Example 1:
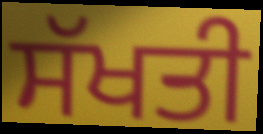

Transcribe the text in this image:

ਸੱਖਤੀ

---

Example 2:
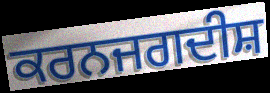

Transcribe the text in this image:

ਕਰਨਜਗਦੀਸ਼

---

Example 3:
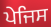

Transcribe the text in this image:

ਪੇਜਿਸ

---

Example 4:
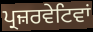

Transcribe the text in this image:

ਪ੍ਰਜ਼ਰਵੇਟਿਵਾਂ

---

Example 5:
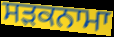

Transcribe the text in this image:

ਸਡ਼ਕਨਾਮਾ